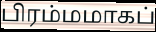
பிரம்மமாகப்